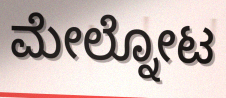
ಮೇಲ್ನೋಟ